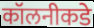
कॉलनीकडे